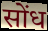
सोंध